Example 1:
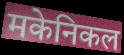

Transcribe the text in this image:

मकेनिकल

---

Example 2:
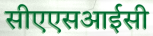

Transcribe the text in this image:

सीएएसआईसी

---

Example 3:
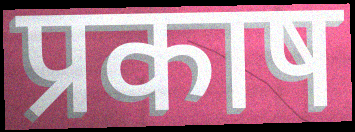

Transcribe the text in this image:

प्रकाष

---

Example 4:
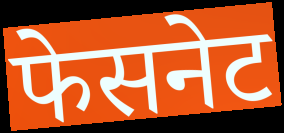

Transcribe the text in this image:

फेसनेट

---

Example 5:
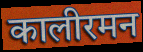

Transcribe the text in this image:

कालीरमन